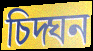
চিদ্ঘন